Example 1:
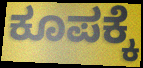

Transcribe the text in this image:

ಕೂಪಕ್ಕೆ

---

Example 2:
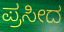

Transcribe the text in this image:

ಪ್ರಸೀದ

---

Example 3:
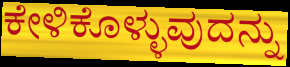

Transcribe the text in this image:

ಕೇಳಿಕೊಳ್ಳುವುದನ್ನು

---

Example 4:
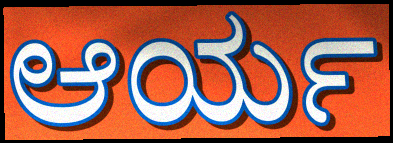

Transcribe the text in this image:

ಆರ್ಯ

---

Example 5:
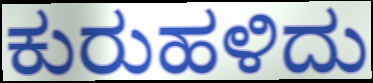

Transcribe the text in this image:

ಕುರುಹಳಿದು